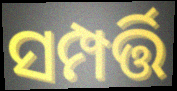
ସମ୍ପର୍ତ୍ତି